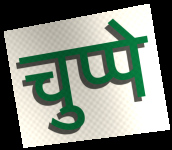
चुप्पे